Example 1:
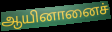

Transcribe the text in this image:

ஆயினானைச்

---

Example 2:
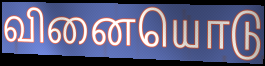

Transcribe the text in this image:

வினையொடு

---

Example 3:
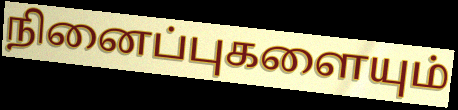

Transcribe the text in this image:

நினைப்புகளையும்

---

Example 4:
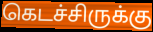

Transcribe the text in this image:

கெடச்சிருக்கு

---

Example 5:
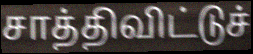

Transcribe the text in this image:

சாத்திவிட்டுச்